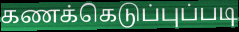
கணக்கெடுப்புப்படி